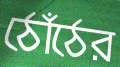
ঠোঁঠের